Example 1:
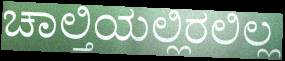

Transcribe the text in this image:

ಚಾಲ್ತಿಯಲ್ಲಿರಲಿಲ್ಲ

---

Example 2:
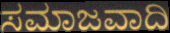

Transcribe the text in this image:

ಸಮಾಜವಾದಿ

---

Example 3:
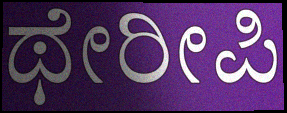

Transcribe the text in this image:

ಥೇರೀಪಿ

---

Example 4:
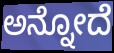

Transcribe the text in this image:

ಅನ್ನೋದೆ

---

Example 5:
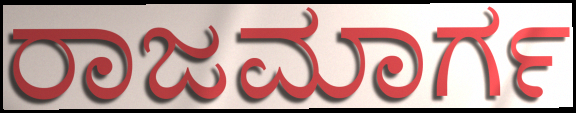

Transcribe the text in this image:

ರಾಜಮಾರ್ಗ